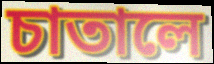
চাতালে